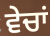
ਵੇਚਾਂ